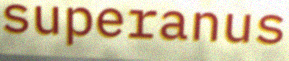
superanus